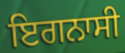
ਇਗਨਾਸੀ